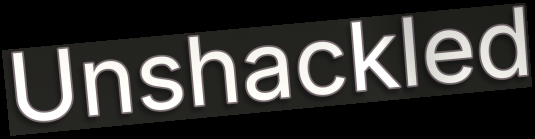
Unshackled